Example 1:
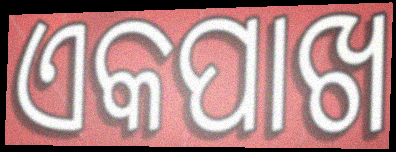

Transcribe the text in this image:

ଏକପାଖ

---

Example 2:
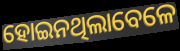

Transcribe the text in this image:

ହୋଇନଥିଲାବେଳେ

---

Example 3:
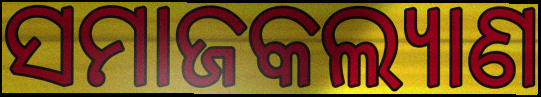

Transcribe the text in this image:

ସମାଜକଲ୍ୟାଣ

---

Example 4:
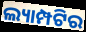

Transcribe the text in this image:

ଲ୍ୟାମ୍ପଟିର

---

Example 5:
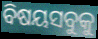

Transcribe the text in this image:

ବିଷୟସବୁକୁ